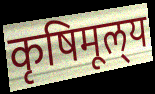
कृषिमूल्य